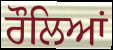
ਰੌਲਿਆਂ